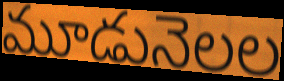
మూడునెలల